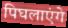
पिघलाएंगे